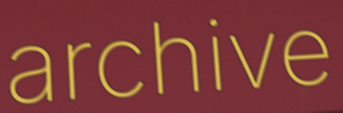
archive